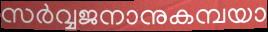
സർവ്വജനാനുകമ്പയാ